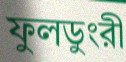
ফুলডুংরী